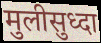
मुलीसुध्दा